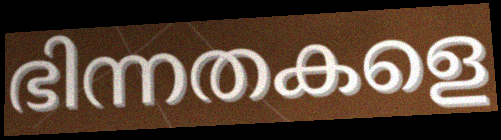
ഭിന്നതകളെ